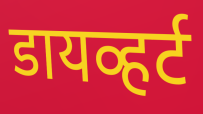
डायव्हर्ट